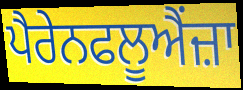
ਪੈਰੇਨਫਲੂਐਂਜ਼ਾ